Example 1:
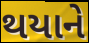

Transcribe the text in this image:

થયાને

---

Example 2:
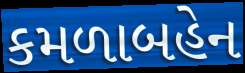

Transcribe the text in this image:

કમળાબહેન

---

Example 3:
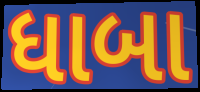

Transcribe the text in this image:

ધાબા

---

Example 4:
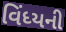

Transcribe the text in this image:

વિંધ્યની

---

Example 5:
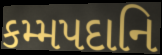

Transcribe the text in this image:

કમ્મપદાનિ